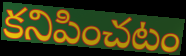
కనిపించటం